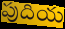
పుదియ